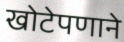
खोटेपणाने